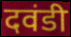
दवंडी